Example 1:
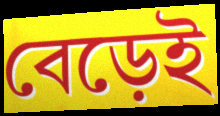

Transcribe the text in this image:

বেড়েই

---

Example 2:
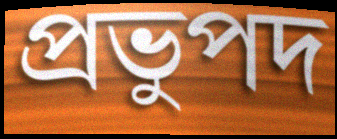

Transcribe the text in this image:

প্রভুপদ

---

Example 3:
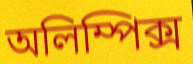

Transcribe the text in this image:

অলিম্পিক্স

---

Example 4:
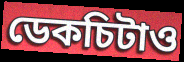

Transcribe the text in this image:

ডেকচিটাও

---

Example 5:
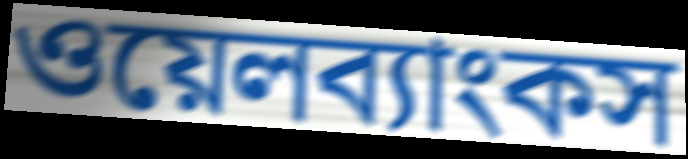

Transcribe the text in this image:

ওয়েলব্যাংকস